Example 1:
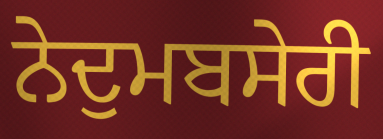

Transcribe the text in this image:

ਨੇਦੁਮਬਸੇਰੀ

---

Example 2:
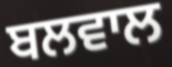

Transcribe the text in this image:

ਬਲਵਾਲ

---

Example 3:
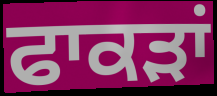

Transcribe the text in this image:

ਫਾਕੜਾਂ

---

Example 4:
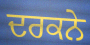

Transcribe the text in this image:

ਦਰਕਨੇ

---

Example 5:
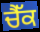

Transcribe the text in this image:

ਚੈੱਕ